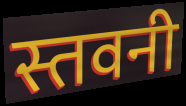
स्तवनी